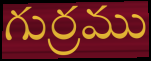
గుర్రము